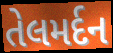
તેલમર્દન